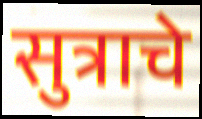
सुत्राचे